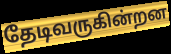
தேடிவருகின்றன